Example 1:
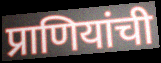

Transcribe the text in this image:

प्राणियांची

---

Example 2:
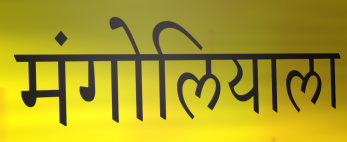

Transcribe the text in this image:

मंगोलियाला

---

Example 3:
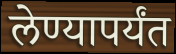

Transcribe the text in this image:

लेण्यापर्यंत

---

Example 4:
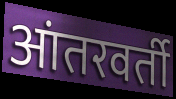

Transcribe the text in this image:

आंतरवर्ती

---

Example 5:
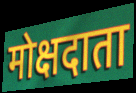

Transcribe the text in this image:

मोक्षदाता